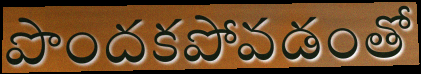
పొందకపోవడంతో